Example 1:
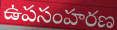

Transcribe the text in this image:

ఉపసంహరణ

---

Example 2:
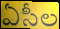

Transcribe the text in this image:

ఏసీల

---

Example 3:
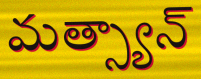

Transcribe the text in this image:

మత్స్యాన్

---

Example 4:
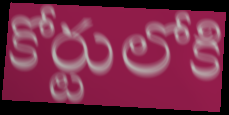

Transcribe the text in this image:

కోర్టులోకి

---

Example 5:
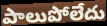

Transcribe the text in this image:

పాలుపోలేదు